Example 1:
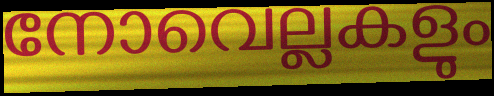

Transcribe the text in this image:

നോവെല്ലകളും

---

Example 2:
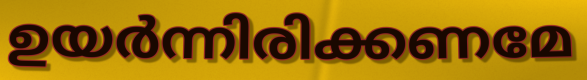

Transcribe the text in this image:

ഉയർന്നിരിക്കണമേ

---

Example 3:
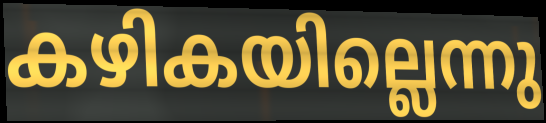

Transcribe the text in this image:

കഴികയില്ലെന്നു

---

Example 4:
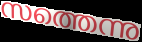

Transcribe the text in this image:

സത്തെന്നു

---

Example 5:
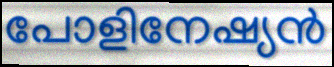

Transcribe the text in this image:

പോളിനേഷ്യൻ